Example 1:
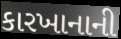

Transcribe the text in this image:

કારખાનાની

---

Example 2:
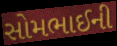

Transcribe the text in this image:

સોમભાઈની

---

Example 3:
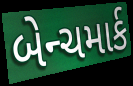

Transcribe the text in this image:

બેન્ચમાર્ક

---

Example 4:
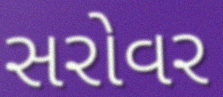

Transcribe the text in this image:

સરોવર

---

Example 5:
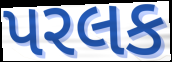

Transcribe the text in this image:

પરલક